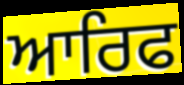
ਆਰਿਫ